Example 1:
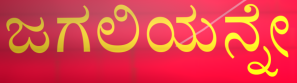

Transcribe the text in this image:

ಜಗಲಿಯನ್ನೇ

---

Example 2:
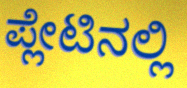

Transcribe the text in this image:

ಪ್ಲೇಟಿನಲ್ಲಿ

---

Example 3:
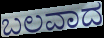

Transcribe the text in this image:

ಬಲವಾದ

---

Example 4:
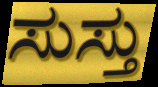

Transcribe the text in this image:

ಸುಸ್ತು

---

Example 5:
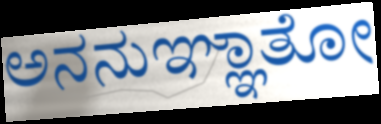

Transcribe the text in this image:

ಅನನುಞ್ಞಾತೋ